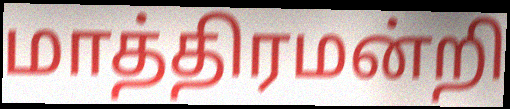
மாத்திரமன்றி